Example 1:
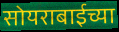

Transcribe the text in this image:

सोयराबाईच्या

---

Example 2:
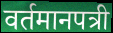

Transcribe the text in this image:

वर्तमानपत्री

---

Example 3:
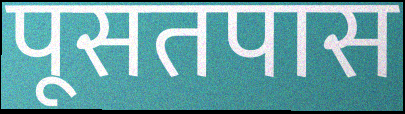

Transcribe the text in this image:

पूसतपास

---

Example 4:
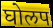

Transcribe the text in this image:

घोलप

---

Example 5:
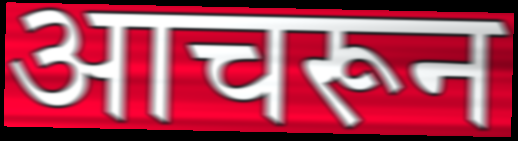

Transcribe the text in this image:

आचरून